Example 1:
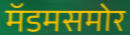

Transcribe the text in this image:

मॅडमसमोर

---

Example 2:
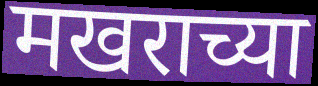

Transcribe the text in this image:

मखराच्या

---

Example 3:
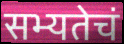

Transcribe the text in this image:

सभ्यतेचं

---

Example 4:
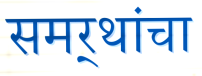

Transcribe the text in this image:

समर्थांचा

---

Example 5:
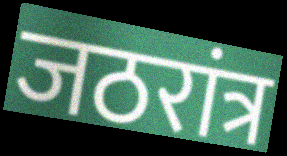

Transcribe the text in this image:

जठरांत्र